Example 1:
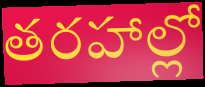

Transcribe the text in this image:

తరహాల్లో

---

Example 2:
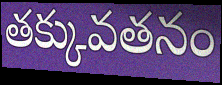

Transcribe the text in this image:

తక్కువతనం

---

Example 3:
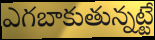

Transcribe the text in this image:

ఎగబాకుతున్నట్టే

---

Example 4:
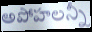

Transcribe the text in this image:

అపోహలన్నీ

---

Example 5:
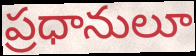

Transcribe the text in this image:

ప్రధానులూ